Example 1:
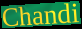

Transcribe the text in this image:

Chandi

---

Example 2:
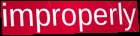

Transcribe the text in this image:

improperly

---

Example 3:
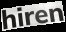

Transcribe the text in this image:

hiren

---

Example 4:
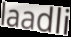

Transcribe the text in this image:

laadli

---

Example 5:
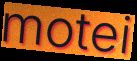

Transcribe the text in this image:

motei